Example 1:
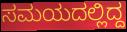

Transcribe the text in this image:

ಸಮಯದಲ್ಲಿದ್ದ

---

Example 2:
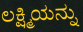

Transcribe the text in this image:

ಲಕ್ಷ್ಮಿಯನ್ನು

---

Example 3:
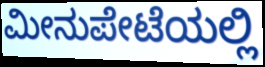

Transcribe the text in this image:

ಮೀನುಪೇಟೆಯಲ್ಲಿ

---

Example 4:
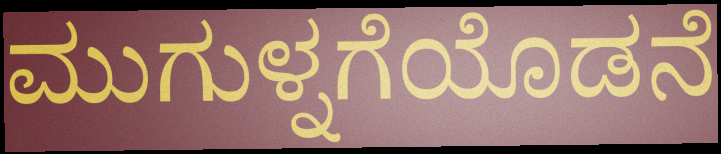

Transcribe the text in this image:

ಮುಗುಳ್ನಗೆಯೊಡನೆ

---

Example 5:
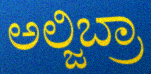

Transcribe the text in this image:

ಅಲ್ಜಿಬ್ರಾ